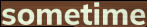
sometime